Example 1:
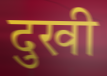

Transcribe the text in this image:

दुखी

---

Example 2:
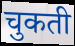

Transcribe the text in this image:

चुकती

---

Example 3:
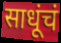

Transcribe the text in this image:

साधूंचं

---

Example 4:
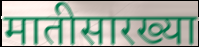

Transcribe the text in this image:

मातीसारख्या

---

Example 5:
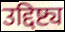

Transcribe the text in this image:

उद्दिष्ट्य